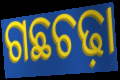
ଗଛଚଢ଼ା